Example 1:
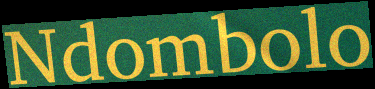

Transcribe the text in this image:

Ndombolo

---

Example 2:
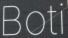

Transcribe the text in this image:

Boti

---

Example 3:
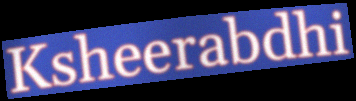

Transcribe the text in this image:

Ksheerabdhi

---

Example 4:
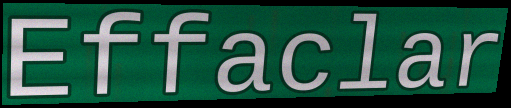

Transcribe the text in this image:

Effaclar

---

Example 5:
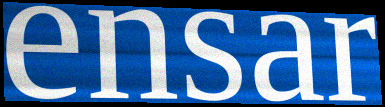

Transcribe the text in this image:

ensar